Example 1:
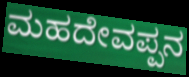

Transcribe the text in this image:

ಮಹದೇವಪ್ಪನ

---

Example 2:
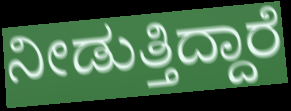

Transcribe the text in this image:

ನೀಡುತ್ತಿದ್ದಾರೆ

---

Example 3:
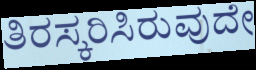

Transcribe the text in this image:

ತಿರಸ್ಕರಿಸಿರುವುದೇ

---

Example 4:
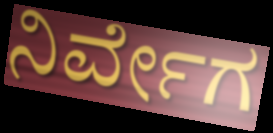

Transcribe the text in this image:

ನಿರ್ವೇಗ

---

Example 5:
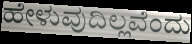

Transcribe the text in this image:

ಹೇಳುವುದಿಲ್ಲವೆಂದು